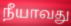
நீயாவது